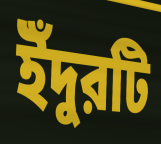
ইঁদুরটি